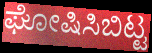
ಘೋಷಿಸಿಬಿಟ್ಟ